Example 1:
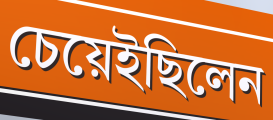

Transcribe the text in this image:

চেয়েইছিলেন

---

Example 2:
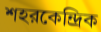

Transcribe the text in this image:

শহরকেন্দ্রিক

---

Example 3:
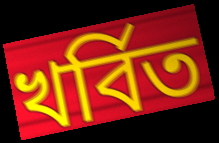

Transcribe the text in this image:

খর্বিত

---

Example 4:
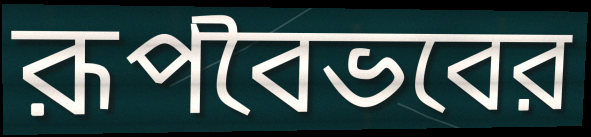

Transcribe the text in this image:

রূপবৈভবের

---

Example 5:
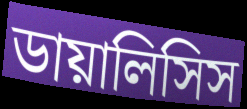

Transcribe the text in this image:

ডায়ালিসিস